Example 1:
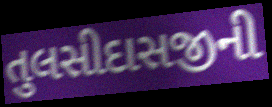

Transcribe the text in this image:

તુલસીદાસજીની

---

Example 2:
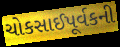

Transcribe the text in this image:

ચોકસાઈપૂર્વકની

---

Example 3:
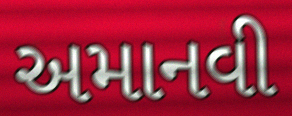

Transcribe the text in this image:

અમાનવી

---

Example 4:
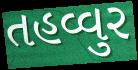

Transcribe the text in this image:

તહવ્વુર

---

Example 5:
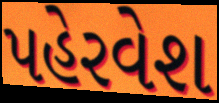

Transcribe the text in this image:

પહેરવેશ